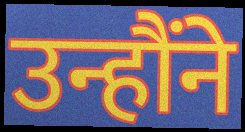
उन्हौंने